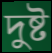
দুষ্ট